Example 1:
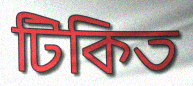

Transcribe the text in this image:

টিকিত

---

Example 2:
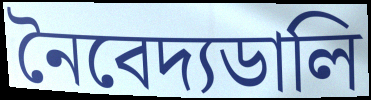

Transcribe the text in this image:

নৈবেদ্যডালি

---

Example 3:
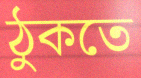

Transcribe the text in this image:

ঠুকতে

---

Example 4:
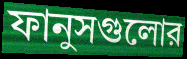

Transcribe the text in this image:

ফানুসগুলোর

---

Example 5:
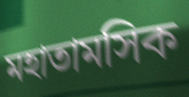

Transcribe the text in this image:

মহাতামসিক